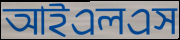
আইএলএস